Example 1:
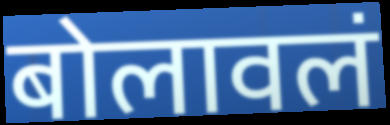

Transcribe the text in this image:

बोलावलं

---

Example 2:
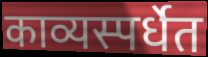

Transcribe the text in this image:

काव्यस्पर्धेत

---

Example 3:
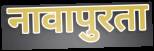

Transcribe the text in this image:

नावापुरता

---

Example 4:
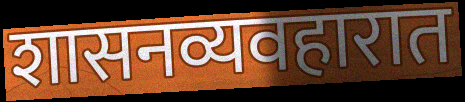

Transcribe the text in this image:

शासनव्यवहारात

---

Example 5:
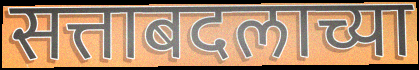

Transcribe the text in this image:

सत्ताबदलाच्या